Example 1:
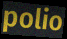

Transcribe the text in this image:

polio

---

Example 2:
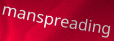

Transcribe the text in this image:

manspreading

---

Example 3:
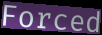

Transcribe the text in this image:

Forced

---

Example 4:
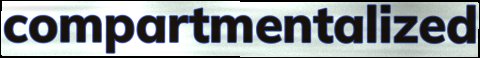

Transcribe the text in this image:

compartmentalized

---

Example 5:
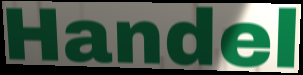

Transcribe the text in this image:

Handel